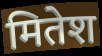
मितेश